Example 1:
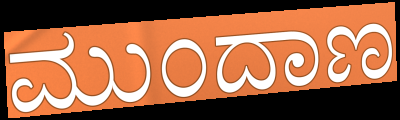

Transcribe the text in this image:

ಮುಂದಾಣ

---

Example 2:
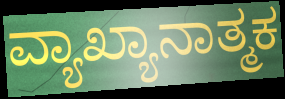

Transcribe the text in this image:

ವ್ಯಾಖ್ಯಾನಾತ್ಮಕ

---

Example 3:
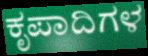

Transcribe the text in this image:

ಕೃಪಾದಿಗಳ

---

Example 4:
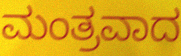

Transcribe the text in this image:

ಮಂತ್ರವಾದ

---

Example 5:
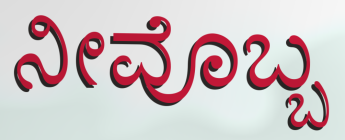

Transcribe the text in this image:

ನೀವೊಬ್ಬ